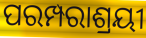
ପରମ୍ପରାଶ୍ରୟୀ